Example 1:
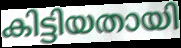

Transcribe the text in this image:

കിട്ടിയതായി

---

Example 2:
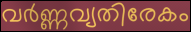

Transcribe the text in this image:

വർണ്ണവ്യതിരേകം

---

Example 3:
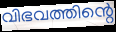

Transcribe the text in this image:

വിഭവത്തിന്റെ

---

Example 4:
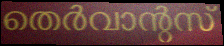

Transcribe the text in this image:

തെർവാന്റസ്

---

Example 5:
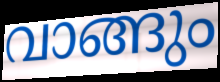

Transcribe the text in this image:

വാങ്ങും